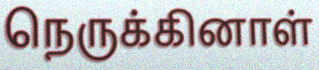
நெருக்கினாள்